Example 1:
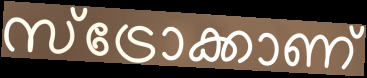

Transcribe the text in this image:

സ്ട്രോക്കാണ്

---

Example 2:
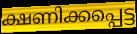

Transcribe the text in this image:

ക്ഷണിക്കപ്പെട്ട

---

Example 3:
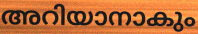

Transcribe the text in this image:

അറിയാനാകും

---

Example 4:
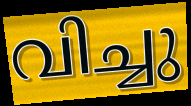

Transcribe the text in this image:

വിച്ചു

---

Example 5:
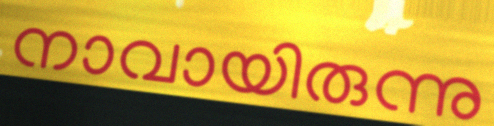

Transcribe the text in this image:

നാവായിരുന്നു